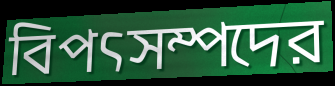
বিপৎসম্পদের